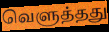
வெளுத்தது